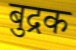
बुद्रक